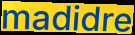
madidre